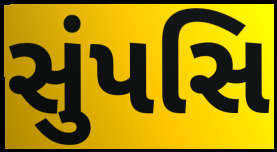
સુંપસિ